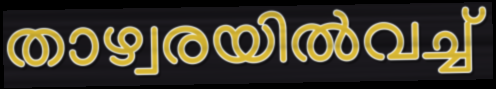
താഴ്വരയിൽവച്ച്